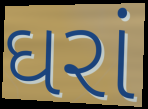
ઘરાં